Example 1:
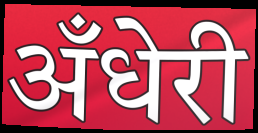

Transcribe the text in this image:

अँधेरी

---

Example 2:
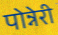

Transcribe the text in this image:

पोन्नेरी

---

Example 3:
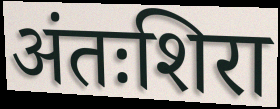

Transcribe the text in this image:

अंतःशिरा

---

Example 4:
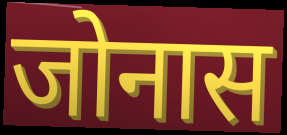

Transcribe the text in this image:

जोनास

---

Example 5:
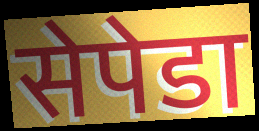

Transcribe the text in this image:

सेपेडा